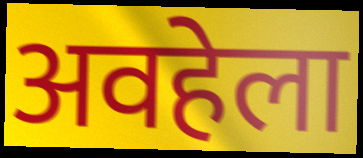
अवहेला